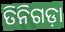
ତିନିଗଡ଼ା